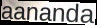
aananda